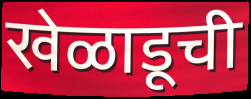
खेळाडूची